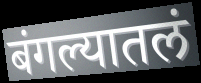
बंगल्यातलं